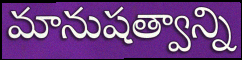
మానుషత్వాన్ని